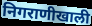
निगराणीखाली